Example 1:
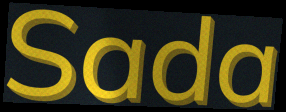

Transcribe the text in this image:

Sada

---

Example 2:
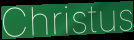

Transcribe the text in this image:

Christus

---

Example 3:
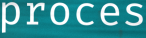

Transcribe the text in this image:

proces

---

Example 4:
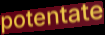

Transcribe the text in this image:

potentate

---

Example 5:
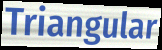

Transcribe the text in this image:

Triangular